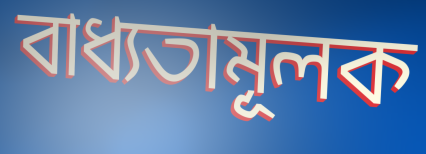
বাধ্যতামূলক